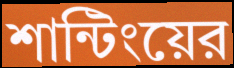
শান্টিংয়ের